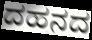
ದಹನದ